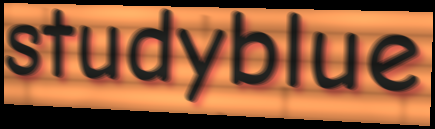
studyblue